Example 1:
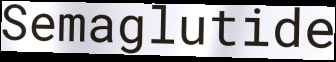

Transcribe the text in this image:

Semaglutide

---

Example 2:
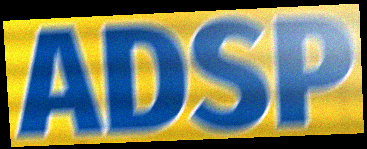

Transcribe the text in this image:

ADSP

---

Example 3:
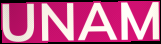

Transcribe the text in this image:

UNAM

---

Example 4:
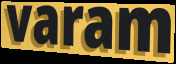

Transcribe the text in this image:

varam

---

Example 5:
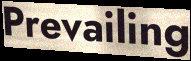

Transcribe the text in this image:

Prevailing